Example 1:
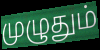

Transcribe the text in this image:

முழுதும்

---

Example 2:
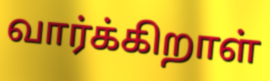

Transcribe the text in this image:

வார்க்கிறாள்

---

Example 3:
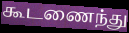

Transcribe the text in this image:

கூடணைந்து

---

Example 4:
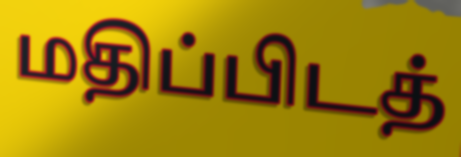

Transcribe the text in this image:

மதிப்பிடத்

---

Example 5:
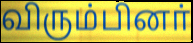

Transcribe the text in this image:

விரும்பினர்